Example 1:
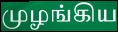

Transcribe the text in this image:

முழங்கிய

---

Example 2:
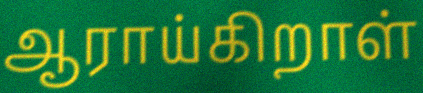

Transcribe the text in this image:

ஆராய்கிறாள்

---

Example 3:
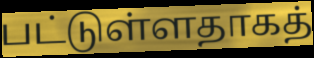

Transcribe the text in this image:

பட்டுள்ளதாகத்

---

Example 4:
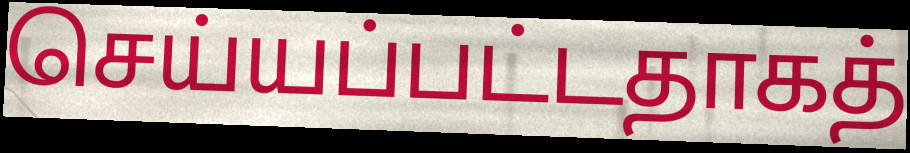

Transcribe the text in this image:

செய்யப்பட்டதாகத்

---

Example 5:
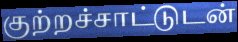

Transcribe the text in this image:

குற்றச்சாட்டுடன்